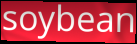
soybean